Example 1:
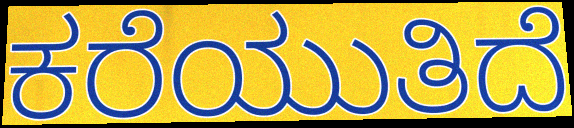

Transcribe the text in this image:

ಕರೆಯುತಿದೆ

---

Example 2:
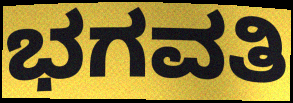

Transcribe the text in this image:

ಭಗವತಿ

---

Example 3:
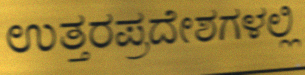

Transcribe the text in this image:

ಉತ್ತರಪ್ರದೇಶಗಳಲ್ಲಿ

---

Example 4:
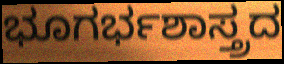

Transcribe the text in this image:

ಭೂಗರ್ಭಶಾಸ್ತ್ರದ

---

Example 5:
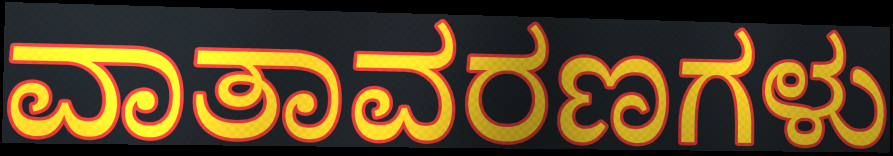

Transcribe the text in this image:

ವಾತಾವರಣಗಳು